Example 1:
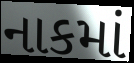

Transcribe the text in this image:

નાકમાં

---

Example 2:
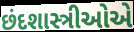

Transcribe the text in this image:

છંદશાસ્ત્રીઓએ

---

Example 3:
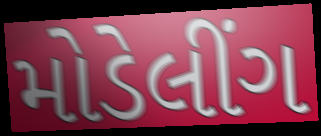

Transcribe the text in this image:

મોડેલીંગ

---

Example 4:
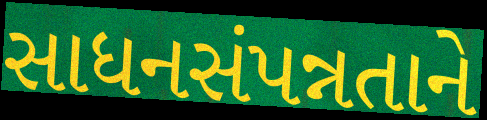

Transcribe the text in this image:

સાધનસંપન્નતાને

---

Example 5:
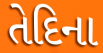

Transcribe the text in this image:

તેદિના